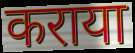
कराया